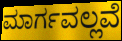
ಮಾರ್ಗವಲ್ಲವೆ